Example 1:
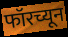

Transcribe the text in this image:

फॉरच्यून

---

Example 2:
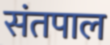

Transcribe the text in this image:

संतपाल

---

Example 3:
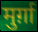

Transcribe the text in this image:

मुर्ग़ा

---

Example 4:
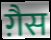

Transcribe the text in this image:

ग़ैस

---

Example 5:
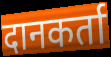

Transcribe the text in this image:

दानकर्ता